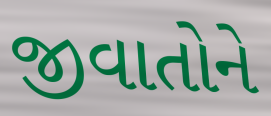
જીવાતોને